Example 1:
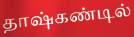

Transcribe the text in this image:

தாஷ்கண்டில்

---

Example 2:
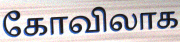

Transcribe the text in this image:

கோவிலாக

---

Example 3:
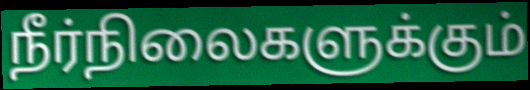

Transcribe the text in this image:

நீர்நிலைகளுக்கும்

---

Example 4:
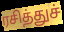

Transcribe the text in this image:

ரசித்துச்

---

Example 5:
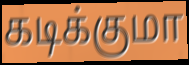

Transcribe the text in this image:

கடிக்குமா